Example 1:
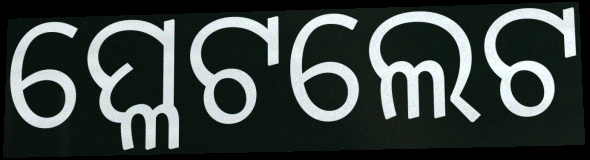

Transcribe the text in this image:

ପ୍ଳେଟଲେଟ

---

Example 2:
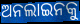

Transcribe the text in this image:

ଅନଲାଇନକୁ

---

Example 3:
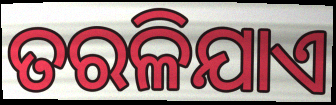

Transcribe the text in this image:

ତରଳିଯାଏ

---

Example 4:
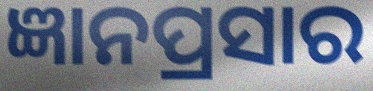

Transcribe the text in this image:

ଜ୍ଞାନପ୍ରସାର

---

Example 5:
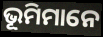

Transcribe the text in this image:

ଭୂମିମାନେ